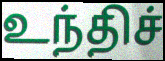
உந்திச்